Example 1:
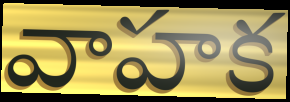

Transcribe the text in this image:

వాహక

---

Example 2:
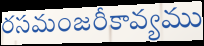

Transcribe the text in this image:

రసమంజరీకావ్యము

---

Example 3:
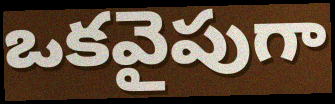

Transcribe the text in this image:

ఒకవైపుగా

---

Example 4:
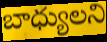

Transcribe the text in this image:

బాధ్యులని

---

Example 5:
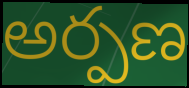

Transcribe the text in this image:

అర్పణ